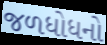
જળધોધનો